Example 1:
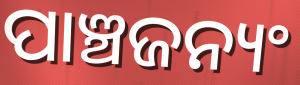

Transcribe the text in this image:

ପାଞ୍ଚଜନ୍ୟଂ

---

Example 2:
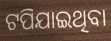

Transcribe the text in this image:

ଟପିଯାଇଥିବା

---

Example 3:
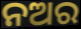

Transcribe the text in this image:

ନଅର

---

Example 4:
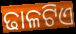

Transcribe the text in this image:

ଢାଳଟିଏ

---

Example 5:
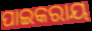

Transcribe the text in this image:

ପାଇକରାୟ